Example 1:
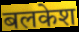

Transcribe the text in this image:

बलकेश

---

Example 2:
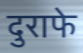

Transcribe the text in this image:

दुराफे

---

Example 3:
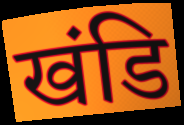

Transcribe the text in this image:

खंडि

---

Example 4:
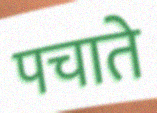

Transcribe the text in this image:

पचाते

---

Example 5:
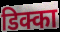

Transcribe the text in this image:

डिक्का